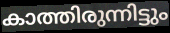
കാത്തിരുന്നിട്ടും